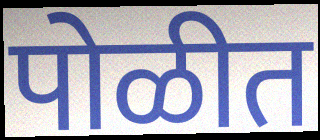
पोळीत